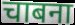
चाबना